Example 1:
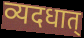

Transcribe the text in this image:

व्यदधात्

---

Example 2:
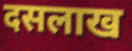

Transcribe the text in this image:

दसलाख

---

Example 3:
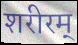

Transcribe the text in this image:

शरीरम्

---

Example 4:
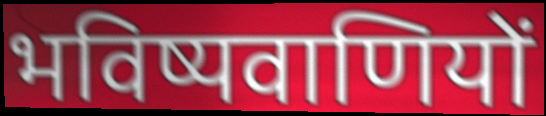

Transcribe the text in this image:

भविष्यवाणियों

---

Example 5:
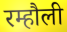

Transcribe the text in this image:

रम्हौली